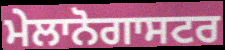
ਮੇਲਾਨੋਗਾਸਟਰ